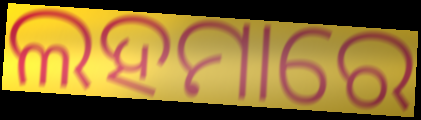
ଲହମାରେ